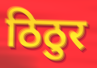
ठिठुर